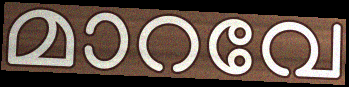
മാറവേ